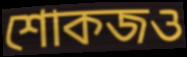
শোকজও